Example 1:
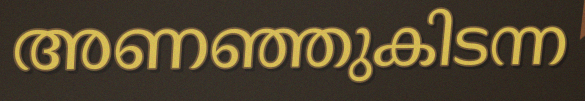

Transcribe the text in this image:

അണഞ്ഞുകിടന്ന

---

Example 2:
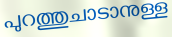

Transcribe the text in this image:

പുറത്തുചാടാനുള്ള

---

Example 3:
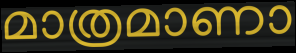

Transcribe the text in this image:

മാത്രമാണാ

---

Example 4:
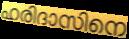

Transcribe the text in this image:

ഹരിദാസിനെ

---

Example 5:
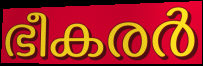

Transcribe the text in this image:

ഭീകരർ